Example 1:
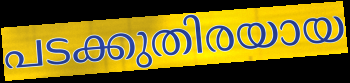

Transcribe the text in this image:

പടക്കുതിരയായ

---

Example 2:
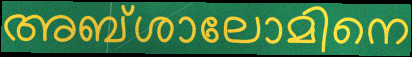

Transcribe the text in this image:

അബ്ശാലോമിനെ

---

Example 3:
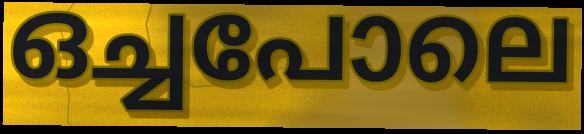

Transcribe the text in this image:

ഒച്ചപോലെ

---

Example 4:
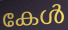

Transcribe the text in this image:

കേൾ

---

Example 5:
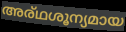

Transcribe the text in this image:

അര്ഥശൂന്യമായ